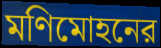
মণিমোহনের